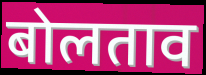
बोलताव